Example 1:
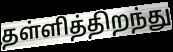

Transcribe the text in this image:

தள்ளித்திறந்து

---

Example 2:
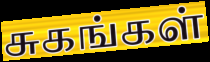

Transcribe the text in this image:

சுகங்கள்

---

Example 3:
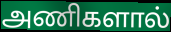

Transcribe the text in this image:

அணிகளால்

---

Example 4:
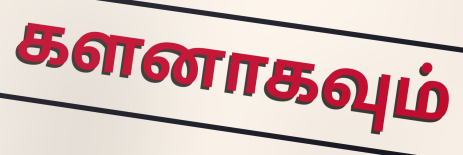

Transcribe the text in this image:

களனாகவும்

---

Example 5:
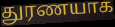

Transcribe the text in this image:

துரணயாக